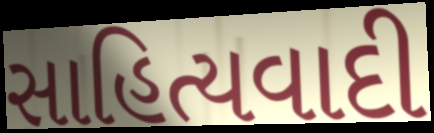
સાહિત્યવાદી